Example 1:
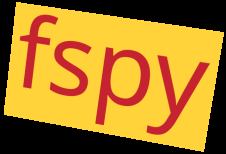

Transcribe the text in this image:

fspy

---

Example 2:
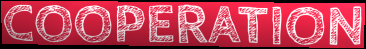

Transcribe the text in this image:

COOPERATION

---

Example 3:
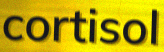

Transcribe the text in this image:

cortisol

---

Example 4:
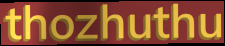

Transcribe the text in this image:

thozhuthu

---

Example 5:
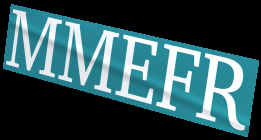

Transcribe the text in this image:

MMEFR